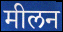
मीलन